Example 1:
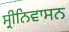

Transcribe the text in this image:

ਸ੍ਰੀਨਿਵਾਸਨ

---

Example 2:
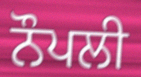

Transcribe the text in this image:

ਨੌਪਲੀ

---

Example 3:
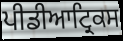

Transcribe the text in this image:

ਪੀਡੀਆਟ੍ਰਿਕਸ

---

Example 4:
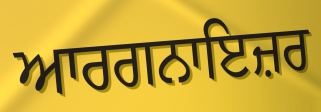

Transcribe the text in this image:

ਆਰਗਨਾਇਜ਼ਰ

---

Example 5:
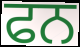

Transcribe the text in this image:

ਫਨ